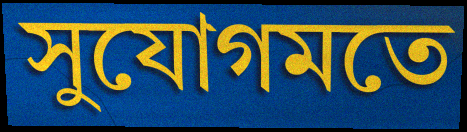
সুযোগমতে